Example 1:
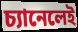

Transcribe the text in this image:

চ্যানেলেই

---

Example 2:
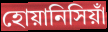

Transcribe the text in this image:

হোয়ানিসিয়াঁ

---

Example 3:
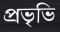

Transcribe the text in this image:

প্রভৃভি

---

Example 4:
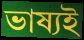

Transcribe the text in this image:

ভাষ্যই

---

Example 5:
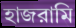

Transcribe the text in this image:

হাজরামি